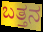
ಬತ್ತನ